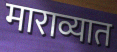
माराव्यात